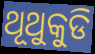
ଥୂଥୁକୁଡି